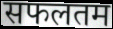
सफलतम